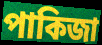
পাকিজা